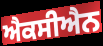
ਐਕਸੀਐਨ